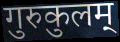
गुरुकुलम्